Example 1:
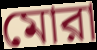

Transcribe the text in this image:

মোরা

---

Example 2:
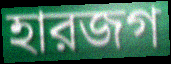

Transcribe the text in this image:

হারজগ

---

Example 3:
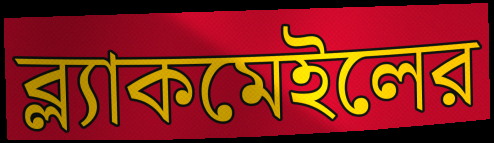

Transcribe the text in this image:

ব্ল্যাকমেইলের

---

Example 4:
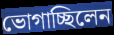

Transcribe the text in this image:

ভোগাচ্ছিলেন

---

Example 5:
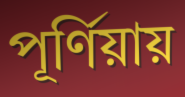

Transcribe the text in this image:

পূর্ণিয়ায়